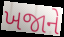
ખજાને